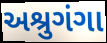
અશ્રુગંગા